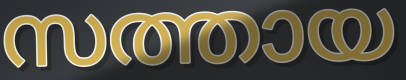
സത്തായ